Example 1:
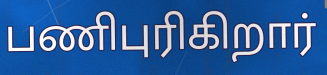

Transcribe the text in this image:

பணிபுரிகிறார்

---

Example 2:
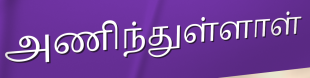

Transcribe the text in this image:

அணிந்துள்ளாள்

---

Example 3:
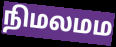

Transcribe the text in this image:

நிமலமம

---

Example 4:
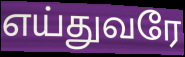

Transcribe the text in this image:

எய்துவரே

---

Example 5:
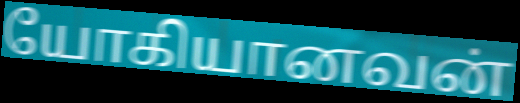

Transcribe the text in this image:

யோகியானவன்